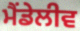
ਮੈਂਡੇਲੀਵ